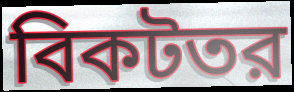
বিকটতর